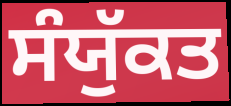
ਸੰਯੁੱਕਤ